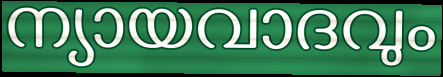
ന്യായവാദവും